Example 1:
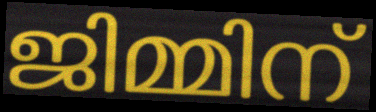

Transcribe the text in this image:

ജിമ്മിന്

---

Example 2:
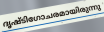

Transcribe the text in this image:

ദൃഷ്ടിഗോചരമായിരുന്നു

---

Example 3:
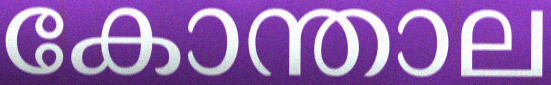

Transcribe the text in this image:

കോന്താല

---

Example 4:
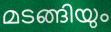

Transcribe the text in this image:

മടങ്ങിയും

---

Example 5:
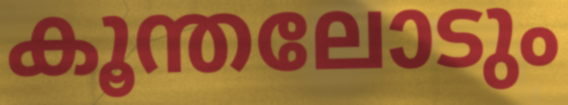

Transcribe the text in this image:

കൂന്തലോടും